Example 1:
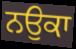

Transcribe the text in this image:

ਨਉਕਾ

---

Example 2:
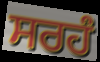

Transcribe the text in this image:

ਸਰਹੰ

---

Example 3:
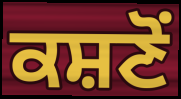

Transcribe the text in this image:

ਕਸ਼ਣੋਂ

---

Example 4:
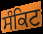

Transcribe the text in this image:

ਸੰਕਿਟ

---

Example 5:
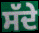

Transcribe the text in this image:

ਸੱਦੇ